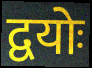
द्वयोः